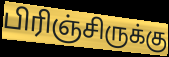
பிரிஞ்சிருக்கு